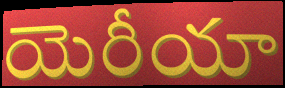
యెరీయా